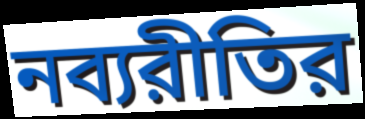
নব্যরীতির